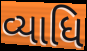
વ્યાધિ